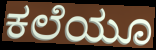
ಕಲೆಯೂ